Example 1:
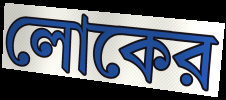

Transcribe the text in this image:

লোকের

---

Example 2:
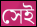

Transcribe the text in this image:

সেই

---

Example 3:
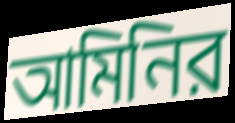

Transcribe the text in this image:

আমিনির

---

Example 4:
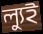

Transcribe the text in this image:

ল্যুই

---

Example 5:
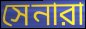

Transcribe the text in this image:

সেনারা